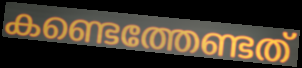
കണ്ടെത്തേണ്ടത്